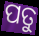
ପତୁ